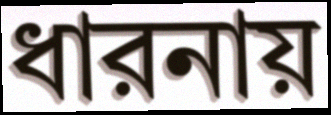
ধারনায়